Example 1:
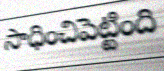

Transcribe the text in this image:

సాధించిపెట్టింది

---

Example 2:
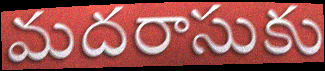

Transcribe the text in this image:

మదరాసుకు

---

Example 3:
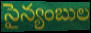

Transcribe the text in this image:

సైన్యంబుల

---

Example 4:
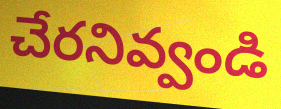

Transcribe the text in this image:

చేరనివ్వండి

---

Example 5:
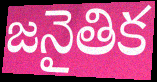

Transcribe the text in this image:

జనైతిక